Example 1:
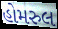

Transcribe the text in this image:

હોમરુલ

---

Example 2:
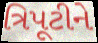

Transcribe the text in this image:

ત્રિપૂટીને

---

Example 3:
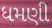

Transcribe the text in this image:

ધમણી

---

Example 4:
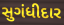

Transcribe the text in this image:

સુગંધીદાર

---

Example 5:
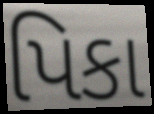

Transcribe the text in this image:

પિકા